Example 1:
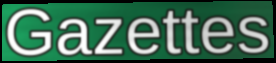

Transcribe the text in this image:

Gazettes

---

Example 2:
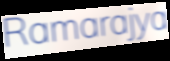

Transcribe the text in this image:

Ramarajya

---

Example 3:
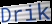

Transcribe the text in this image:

Drik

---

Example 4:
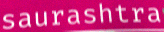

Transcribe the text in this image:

saurashtra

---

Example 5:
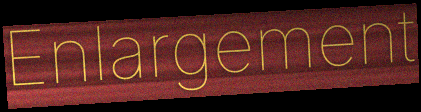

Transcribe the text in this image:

Enlargement